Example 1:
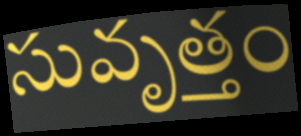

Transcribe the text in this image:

సువృత్తం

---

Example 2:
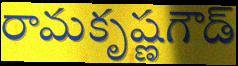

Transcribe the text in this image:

రామకృష్ణగౌడ్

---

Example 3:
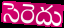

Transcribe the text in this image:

సెరెదు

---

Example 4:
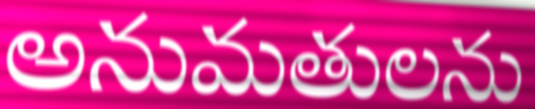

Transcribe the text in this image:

అనుమతులను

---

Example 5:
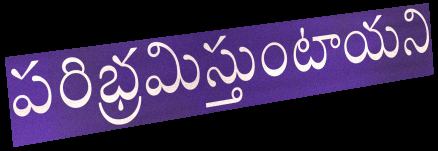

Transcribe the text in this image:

పరిభ్రమిస్తుంటాయని